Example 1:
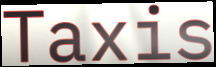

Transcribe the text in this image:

Taxis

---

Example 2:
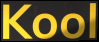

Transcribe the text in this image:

Kool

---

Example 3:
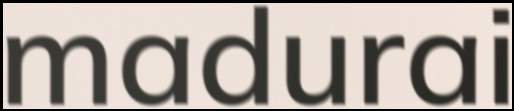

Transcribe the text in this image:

madurai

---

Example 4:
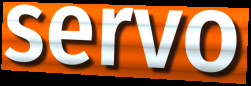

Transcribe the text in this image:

servo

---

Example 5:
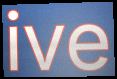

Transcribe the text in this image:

ive